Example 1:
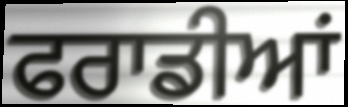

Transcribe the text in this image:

ਫਰਾਡੀਆਂ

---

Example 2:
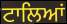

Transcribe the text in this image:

ਟਾਲਿਆਂ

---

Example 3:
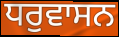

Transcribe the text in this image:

ਧਰੁਵਾਸਨ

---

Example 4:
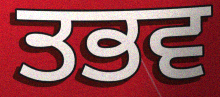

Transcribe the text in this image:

ਤਭਵ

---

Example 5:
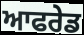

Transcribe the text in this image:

ਆਫਰੇਡ